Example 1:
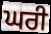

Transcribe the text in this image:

ਘਰੀ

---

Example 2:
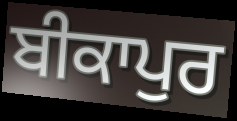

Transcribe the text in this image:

ਬੀਕਾਪੁਰ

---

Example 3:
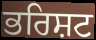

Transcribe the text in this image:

ਭਰਿਸ਼ਟ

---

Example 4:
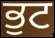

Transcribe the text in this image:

ਭੁਟ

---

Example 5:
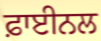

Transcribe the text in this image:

ਫ਼ਾਈਨਲ